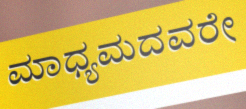
ಮಾಧ್ಯಮದವರೇ